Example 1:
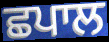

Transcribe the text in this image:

ਛਪਾਲ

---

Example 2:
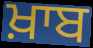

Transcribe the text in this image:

ਖ਼ਾਬ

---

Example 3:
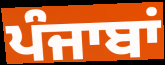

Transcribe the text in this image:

ਪੰਜਾਬਾਂ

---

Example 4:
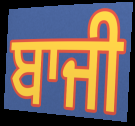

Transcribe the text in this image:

ਬਾਜੀ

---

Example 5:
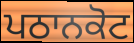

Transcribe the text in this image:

ਪਠਾਨਕੋਟ